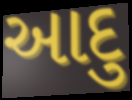
આદુ